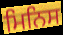
ਮਿਨਿਸ